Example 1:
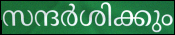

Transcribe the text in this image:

സന്ദർശിക്കും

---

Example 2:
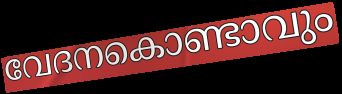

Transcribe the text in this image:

വേദനകൊണ്ടാവും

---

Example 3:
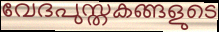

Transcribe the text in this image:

വേദപുസ്തകങ്ങളുടെ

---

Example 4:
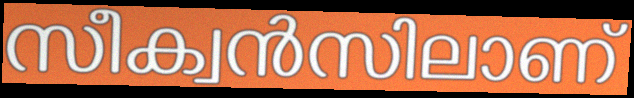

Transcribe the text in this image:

സീക്വൻസിലാണ്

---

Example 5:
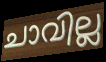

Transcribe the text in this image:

ചാവില്ല